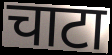
चाटा